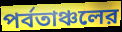
পর্বতাঞ্চলের